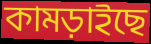
কামড়াইছে